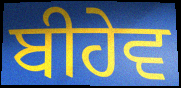
ਬੀਹੇਵ